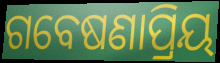
ଗବେଷଣାପ୍ରିୟ